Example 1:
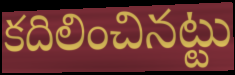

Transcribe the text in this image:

కదిలించినట్టు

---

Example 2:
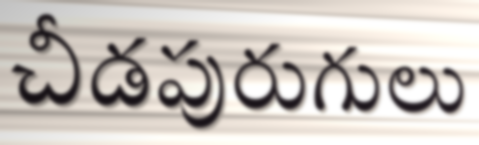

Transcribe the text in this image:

చీడపురుగులు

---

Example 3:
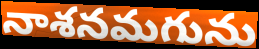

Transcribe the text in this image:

నాశనమగును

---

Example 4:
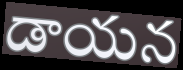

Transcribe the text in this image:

డాయన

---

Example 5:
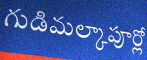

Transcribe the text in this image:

గుడిమల్కాపూర్లో